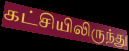
கட்சியிலிருந்து